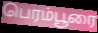
பெரம்பூரை